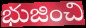
భుజించి